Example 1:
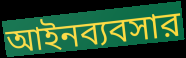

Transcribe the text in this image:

আইনব্যবসার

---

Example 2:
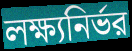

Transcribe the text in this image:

লক্ষ্যনির্ভর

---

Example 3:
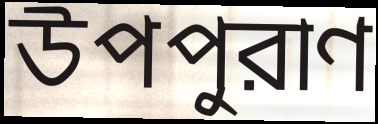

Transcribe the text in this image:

উপপুরাণ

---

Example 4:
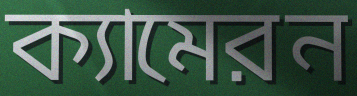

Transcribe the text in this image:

ক্যামেরন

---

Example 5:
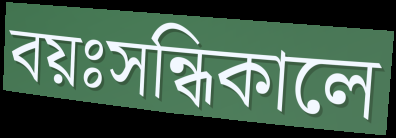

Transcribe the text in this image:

বয়ঃসন্ধিকালে